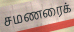
சமணரைக்